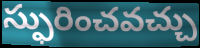
స్ఫురించవచ్చు